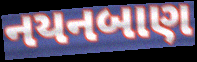
નયનબાણ